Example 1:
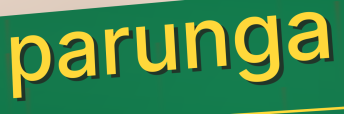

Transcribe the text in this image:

parunga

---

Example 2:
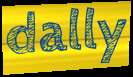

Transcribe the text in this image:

dally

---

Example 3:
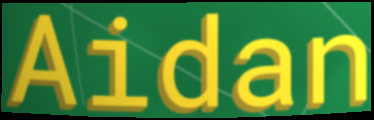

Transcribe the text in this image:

Aidan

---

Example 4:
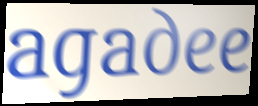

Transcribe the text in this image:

agadee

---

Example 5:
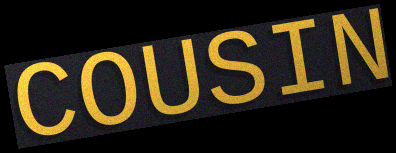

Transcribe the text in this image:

COUSIN